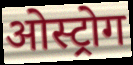
ओस्ट्रोग